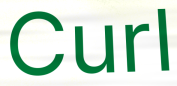
Curl